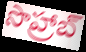
సొహ్రాబ్